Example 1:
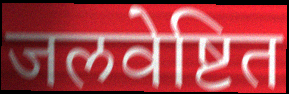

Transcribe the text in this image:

जलवेष्टित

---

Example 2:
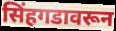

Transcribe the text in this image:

सिंहगडावरून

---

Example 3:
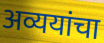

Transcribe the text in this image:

अव्ययांचा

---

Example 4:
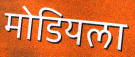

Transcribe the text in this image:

मोडियला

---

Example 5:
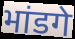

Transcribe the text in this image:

भांडगे